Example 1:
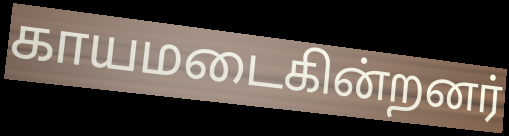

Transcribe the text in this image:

காயமடைகின்றனர்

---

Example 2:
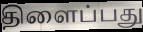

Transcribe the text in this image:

திளைப்பது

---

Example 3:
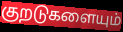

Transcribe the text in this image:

குறடுகளையும்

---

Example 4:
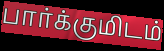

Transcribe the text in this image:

பார்க்குமிடம்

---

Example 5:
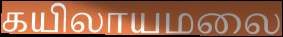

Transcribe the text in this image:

கயிலாயமலை